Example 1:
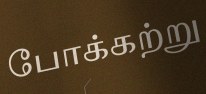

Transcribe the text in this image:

போக்கற்று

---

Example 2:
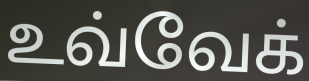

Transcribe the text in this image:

உவ்வேக்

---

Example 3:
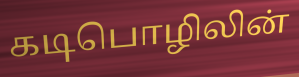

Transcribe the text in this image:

கடிபொழிலின்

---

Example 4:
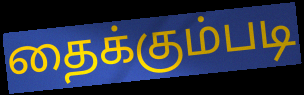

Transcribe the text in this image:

தைக்கும்படி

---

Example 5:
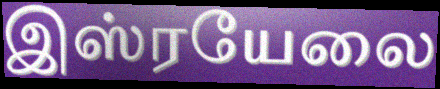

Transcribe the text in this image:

இஸ்ரயேலை